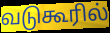
வடுகூரில்